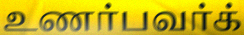
உணர்பவர்க்